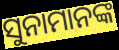
ସୁନାମାନଙ୍କ